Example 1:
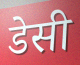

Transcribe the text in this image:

डेसी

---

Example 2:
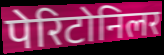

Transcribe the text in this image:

पेरिटोनिलर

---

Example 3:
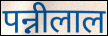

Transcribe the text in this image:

पन्नीलाल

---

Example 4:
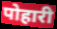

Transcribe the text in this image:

पोहारी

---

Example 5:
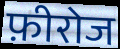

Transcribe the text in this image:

फ़ीरोज